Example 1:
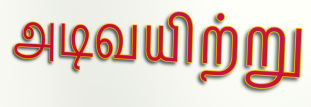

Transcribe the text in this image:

அடிவயிற்று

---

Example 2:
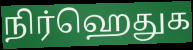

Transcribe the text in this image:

நிர்ஹெதுக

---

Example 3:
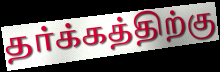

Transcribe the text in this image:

தர்க்கத்திற்கு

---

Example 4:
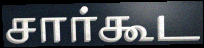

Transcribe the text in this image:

சார்கூட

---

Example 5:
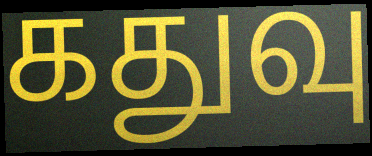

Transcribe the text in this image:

கதுவு